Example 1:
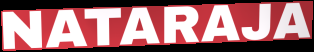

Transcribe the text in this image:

NATARAJA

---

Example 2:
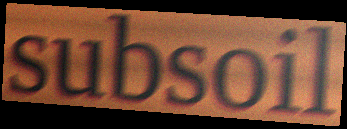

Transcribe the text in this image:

subsoil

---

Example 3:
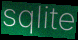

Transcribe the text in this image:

sqlite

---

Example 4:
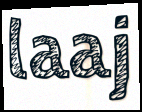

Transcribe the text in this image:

laaj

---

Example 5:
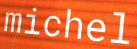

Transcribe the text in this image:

michel